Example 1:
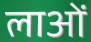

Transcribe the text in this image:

लाओं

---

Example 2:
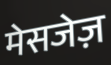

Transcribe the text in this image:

मेसजेज़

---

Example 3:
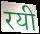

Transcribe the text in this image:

रयी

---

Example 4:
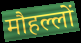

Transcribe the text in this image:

मौहल्लों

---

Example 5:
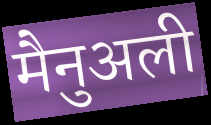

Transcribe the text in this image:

मैनुअली